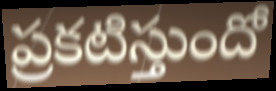
ప్రకటిస్తుందో